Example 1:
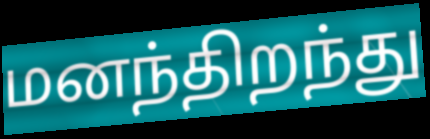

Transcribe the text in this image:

மனந்திறந்து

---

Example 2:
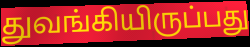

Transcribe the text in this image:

துவங்கியிருப்பது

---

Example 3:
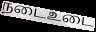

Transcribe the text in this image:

நடைஉடை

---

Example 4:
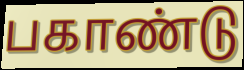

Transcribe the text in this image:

பகாண்டு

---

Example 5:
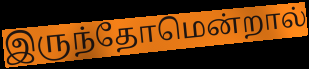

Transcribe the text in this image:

இருந்தோமென்றால்